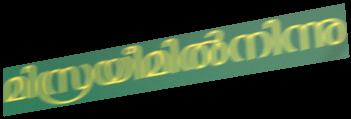
മിസ്രയീമിൽനിന്നു